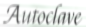
Autoclave